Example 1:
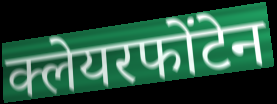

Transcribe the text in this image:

क्लेयरफोंटेन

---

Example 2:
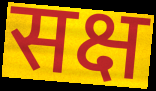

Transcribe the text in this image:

सक्ष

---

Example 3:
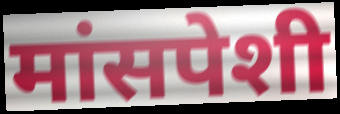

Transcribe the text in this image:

मांसपेशी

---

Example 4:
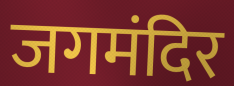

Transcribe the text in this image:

जगमंदिर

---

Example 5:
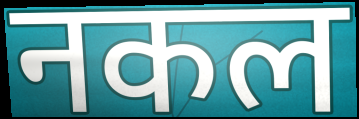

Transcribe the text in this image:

नकल